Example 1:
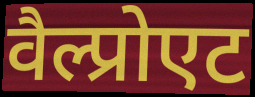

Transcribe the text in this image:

वैल्प्रोएट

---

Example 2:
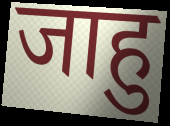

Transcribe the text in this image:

जाहु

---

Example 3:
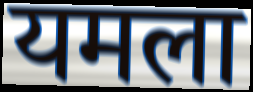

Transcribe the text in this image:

यमला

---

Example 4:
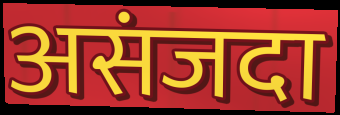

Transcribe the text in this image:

असंजदा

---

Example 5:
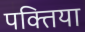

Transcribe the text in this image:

पक्तिया